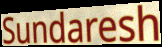
Sundaresh